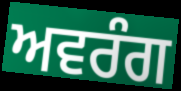
ਅਵਰੰਗ